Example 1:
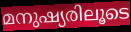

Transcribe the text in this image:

മനുഷ്യരിലൂടെ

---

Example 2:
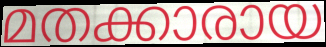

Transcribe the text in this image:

മതക്കാരായ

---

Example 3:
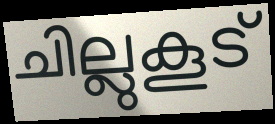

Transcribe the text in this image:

ചില്ലുകൂട്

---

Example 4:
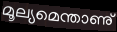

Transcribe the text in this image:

മൂല്യമെന്താണു്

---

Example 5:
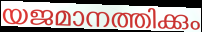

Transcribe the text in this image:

യജമാനത്തിക്കും